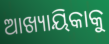
ଆଖ୍ୟାୟିକାକୁ